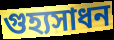
গুহ্যসাধন